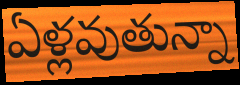
ఏళ్లవుతున్నా